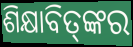
ଶିକ୍ଷାବିତ୍‌ଙ୍କର